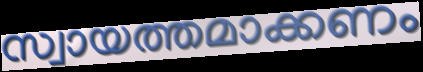
സ്വായത്തമാക്കണം